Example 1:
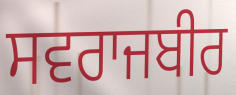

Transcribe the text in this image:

ਸਵਰਾਜਬੀਰ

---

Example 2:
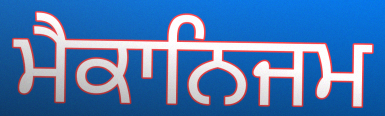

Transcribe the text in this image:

ਮੈਕਾਨਿਜਮ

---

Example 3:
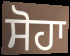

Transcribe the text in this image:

ਸੋਹਾ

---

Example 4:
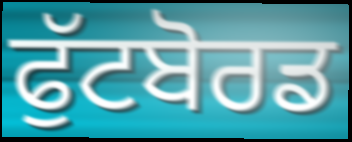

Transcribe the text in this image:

ਫੁੱਟਬੋਰਡ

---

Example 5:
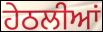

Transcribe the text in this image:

ਹੇਠਲੀਆਂ